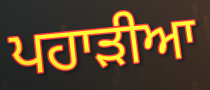
ਪਹਾੜੀਆ